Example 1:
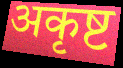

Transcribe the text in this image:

अकृष्ट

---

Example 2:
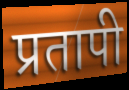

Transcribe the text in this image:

प्रतापी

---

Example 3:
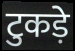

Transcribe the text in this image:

टुकड़े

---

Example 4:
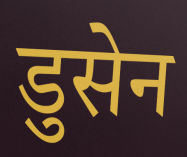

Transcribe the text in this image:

डुसेन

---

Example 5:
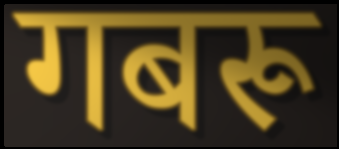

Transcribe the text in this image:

गबरू